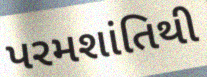
પરમશાંતિથી